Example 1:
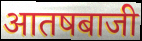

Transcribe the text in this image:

आतषबाजी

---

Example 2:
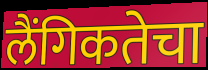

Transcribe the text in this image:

लैंगिकतेचा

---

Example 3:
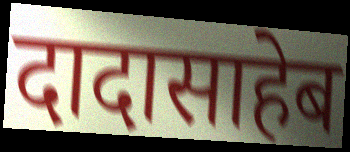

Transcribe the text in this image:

दादासाहेब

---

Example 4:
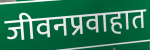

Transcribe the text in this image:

जीवनप्रवाहात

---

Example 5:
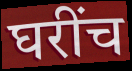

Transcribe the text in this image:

घरींच